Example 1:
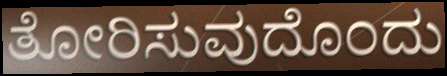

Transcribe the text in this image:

ತೋರಿಸುವುದೊಂದು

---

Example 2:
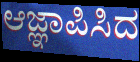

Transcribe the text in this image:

ಆಜ್ಞಾಪಿಸಿದ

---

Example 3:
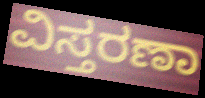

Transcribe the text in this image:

ವಿಸ್ತರಣಾ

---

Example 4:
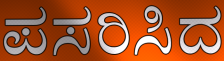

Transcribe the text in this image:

ಪಸರಿಸಿದ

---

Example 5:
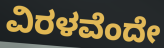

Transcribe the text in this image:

ವಿರಳವೆಂದೇ